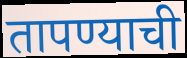
तापण्याची